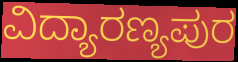
ವಿದ್ಯಾರಣ್ಯಪುರ